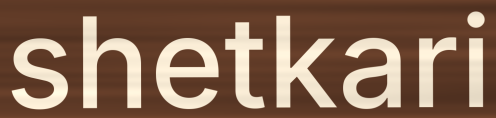
shetkari